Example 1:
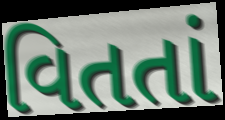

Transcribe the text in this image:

વિતતાં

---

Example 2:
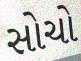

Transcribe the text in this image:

સોચો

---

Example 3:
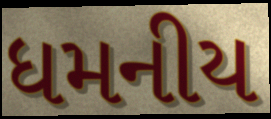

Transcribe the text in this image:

ધમનીય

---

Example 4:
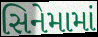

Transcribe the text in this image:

સિનેમામાં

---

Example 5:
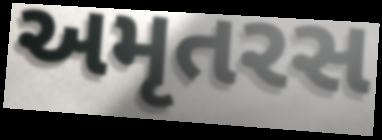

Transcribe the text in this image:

અમૃતરસ